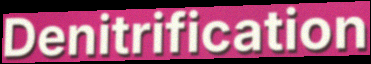
Denitrification